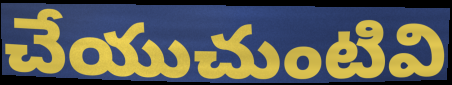
చేయుచుంటివి